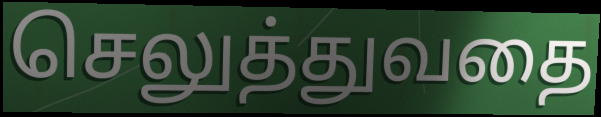
செலுத்துவதை